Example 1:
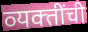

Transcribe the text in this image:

व्‍यक्‍तींची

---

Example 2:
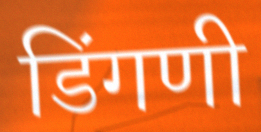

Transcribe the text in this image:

डिंगणी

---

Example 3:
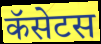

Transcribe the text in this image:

कॅसेटस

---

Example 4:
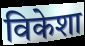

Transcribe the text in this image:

विकेशा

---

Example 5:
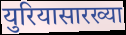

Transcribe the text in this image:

युरियासारख्या